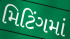
મિટિંગમાં